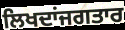
ਲਿਖਦਾਂਜਗਤਾਰ